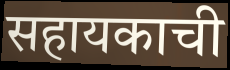
सहायकाची